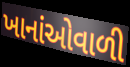
ખાનાંઓવાળી